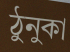
ঠুনুকা